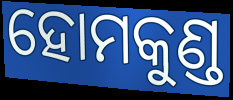
ହୋମକୁଣ୍ଡ